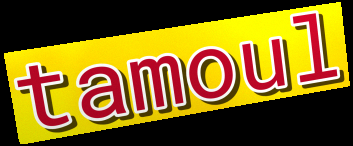
tamoul